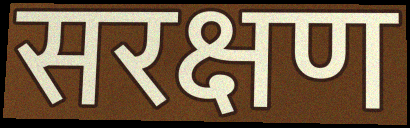
सरक्षण